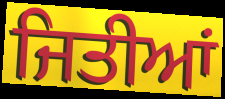
ਜਿਤੀਆਂ